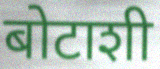
बोटाशी